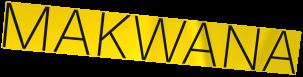
MAKWANA